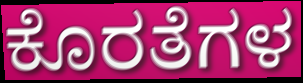
ಕೊರತೆಗಳ